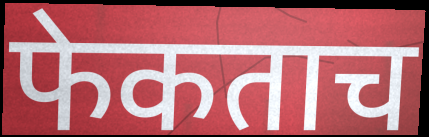
फेकताच